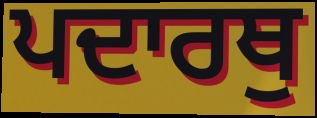
ਪਦਾਰਥੁ